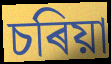
চৰিয়া